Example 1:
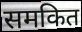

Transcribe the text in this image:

समकित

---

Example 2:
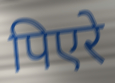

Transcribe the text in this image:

पिएरे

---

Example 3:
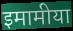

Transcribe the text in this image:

इमामीया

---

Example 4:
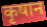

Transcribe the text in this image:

कृषान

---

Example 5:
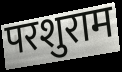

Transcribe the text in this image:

परशुराम